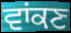
ਵਾਂਕਣ